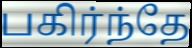
பகிர்ந்தே